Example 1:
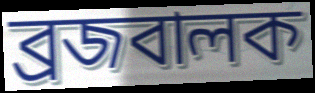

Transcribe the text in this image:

ব্রজবালক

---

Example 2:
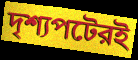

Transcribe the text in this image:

দৃশ্যপটেরই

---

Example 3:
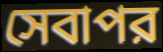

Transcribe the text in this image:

সেবাপর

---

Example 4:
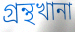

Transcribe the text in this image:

গ্রন্থখানা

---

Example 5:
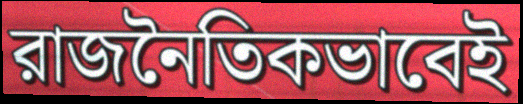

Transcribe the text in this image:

রাজনৈতিকভাবেই